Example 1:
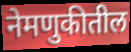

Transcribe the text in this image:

नेमणुकीतील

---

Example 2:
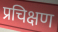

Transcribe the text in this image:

प्रचिक्षण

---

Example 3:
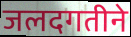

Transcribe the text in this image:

जलदगतीने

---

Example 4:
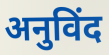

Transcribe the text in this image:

अनुविंद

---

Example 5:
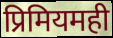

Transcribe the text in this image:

प्रिमियमही